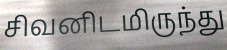
சிவனிடமிருந்து